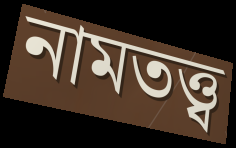
নামতত্ত্ব